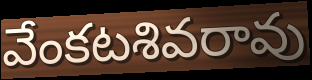
వేంకటశివరావు